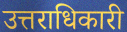
उत्तराधिकारी